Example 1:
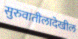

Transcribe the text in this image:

सुरुवातीलादेखील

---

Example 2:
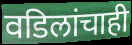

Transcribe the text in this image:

वडिलांचाही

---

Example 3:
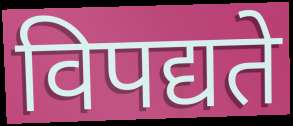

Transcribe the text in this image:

विपद्यते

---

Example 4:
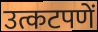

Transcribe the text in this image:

उत्कटपणें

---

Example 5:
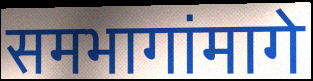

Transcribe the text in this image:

समभागांमागे